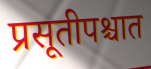
प्रसूतीपश्चात